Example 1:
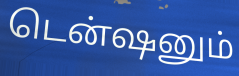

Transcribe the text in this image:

டென்ஷனும்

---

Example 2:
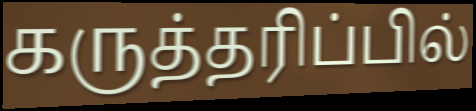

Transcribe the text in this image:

கருத்தரிப்பில்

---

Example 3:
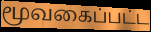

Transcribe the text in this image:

மூவகைப்பட்ட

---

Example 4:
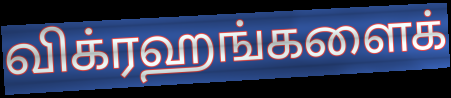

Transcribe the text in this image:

விக்ரஹங்களைக்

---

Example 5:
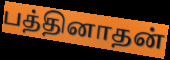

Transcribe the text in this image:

பத்தினாதன்